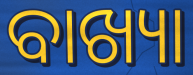
ବାଖ୍ୟା